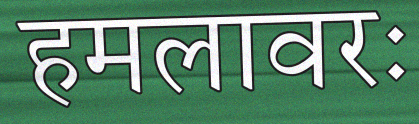
हमलावरः